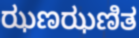
ಝಣಝಣಿತ